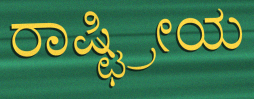
ರಾಷ್ಟ್ರೀಯ